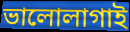
ভালোলাগাই